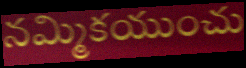
నమ్మికయుంచు